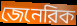
জেনেরিক